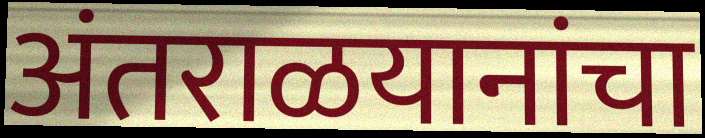
अंतराळयानांचा